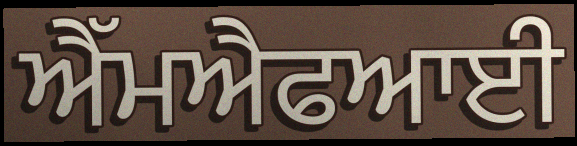
ਐੱਮਐਫਆਈ